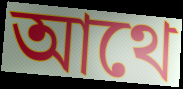
আথে